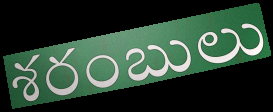
శరంబులు